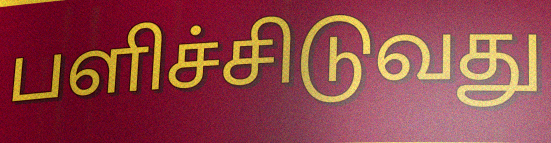
பளிச்சிடுவது